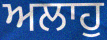
ਅਲਾਹੁ